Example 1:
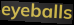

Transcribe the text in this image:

eyeballs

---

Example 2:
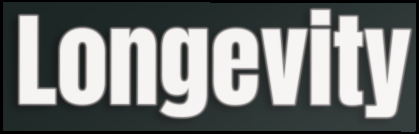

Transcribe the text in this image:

Longevity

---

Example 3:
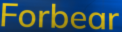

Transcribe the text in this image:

Forbear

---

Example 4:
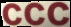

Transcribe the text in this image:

ccc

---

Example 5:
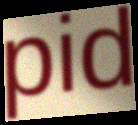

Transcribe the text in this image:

pid